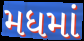
મધમાં